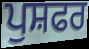
ਪੁਸ਼ਫਰ